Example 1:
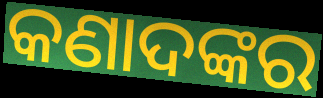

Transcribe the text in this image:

କଣାଦଙ୍କର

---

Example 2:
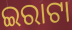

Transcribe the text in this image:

ଇରାଟା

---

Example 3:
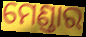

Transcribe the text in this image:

ମେଣ୍ଡାର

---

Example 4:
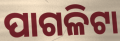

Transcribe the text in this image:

ପାଗଳିଟା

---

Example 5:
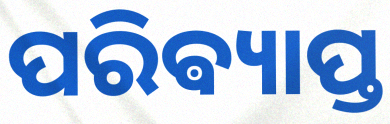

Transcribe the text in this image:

ପରିଵ୍ୟାପ୍ତ